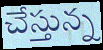
చేస్తున్న